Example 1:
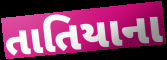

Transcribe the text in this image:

તાતિયાના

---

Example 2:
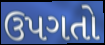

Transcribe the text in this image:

ઉપગતો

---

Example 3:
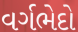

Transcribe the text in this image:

વર્ગભેદો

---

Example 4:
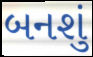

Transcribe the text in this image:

બનશું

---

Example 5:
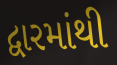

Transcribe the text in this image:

દ્વારમાંથી